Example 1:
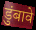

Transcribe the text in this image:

डुंबावे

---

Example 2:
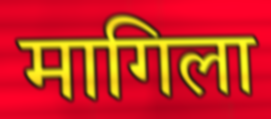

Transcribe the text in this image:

मागिला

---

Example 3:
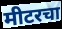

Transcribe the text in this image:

मीटरचा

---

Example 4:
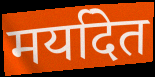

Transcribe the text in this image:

मर्यादेत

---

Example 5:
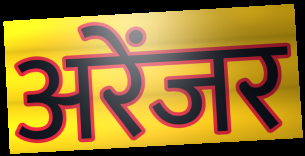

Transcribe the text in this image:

अरेंजर